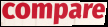
compare